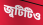
জুটিটিও